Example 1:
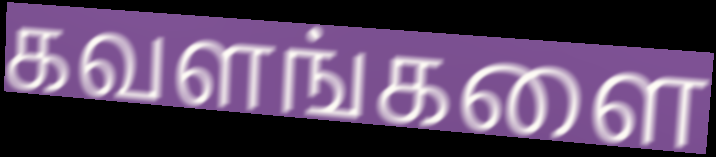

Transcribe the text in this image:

கவளங்களை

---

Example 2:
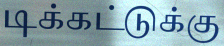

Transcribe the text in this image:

டிக்கட்டுக்கு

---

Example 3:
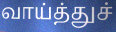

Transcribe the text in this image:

வாய்த்துச்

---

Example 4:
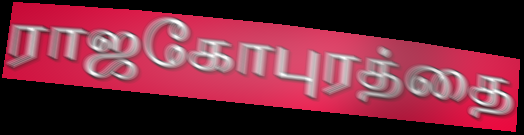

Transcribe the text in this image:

ராஜகோபுரத்தை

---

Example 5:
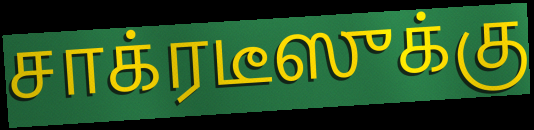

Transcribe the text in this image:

சாக்ரடீஸுக்கு